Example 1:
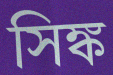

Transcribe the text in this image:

সিঙ্ক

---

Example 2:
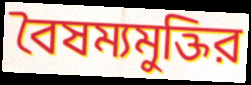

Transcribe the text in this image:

বৈষম্যমুক্তির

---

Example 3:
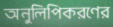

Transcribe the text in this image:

অনুলিপিকরণের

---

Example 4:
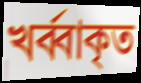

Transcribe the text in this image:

খর্ব্বাকৃত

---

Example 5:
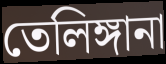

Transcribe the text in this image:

তেলিঙ্গানা